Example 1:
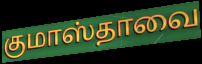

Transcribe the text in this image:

குமாஸ்தாவை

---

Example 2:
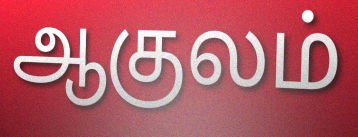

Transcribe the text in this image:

ஆகுலம்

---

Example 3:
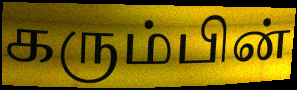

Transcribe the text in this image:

கரும்பின்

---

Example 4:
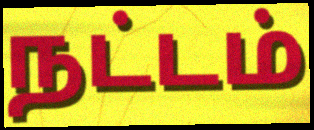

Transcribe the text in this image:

நட்டம்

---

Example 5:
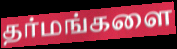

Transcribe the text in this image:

தர்மங்களை